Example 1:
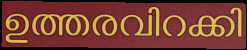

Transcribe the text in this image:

ഉത്തരവിറക്കി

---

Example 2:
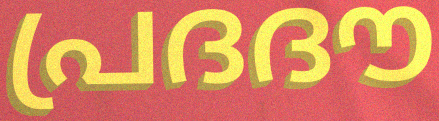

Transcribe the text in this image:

പ്രദദൗ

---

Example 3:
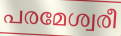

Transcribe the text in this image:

പരമേശ്വരീ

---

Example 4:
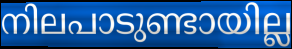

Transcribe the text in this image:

നിലപാടുണ്ടായില്ല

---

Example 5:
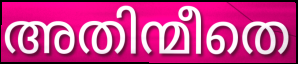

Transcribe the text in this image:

അതിന്മീതെ